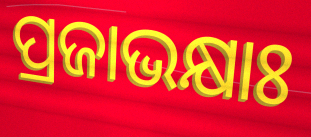
ପ୍ରଜାଭକ୍ଷାଃ